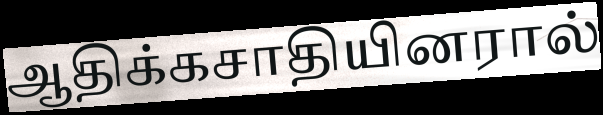
ஆதிக்கசாதியினரால்